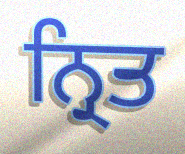
ਨ੍ਰਿਤ